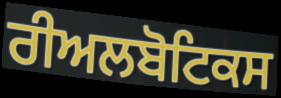
ਰੀਅਲਬੋਟਿਕਸ